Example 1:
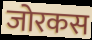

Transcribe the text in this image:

जोरकस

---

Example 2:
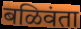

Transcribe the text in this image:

बळिवंता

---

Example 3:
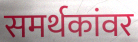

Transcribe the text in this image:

समर्थकांवर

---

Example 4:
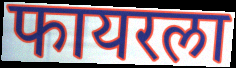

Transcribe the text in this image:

फायरला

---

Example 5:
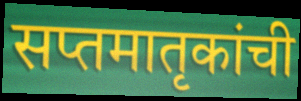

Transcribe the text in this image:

सप्तमातृकांची